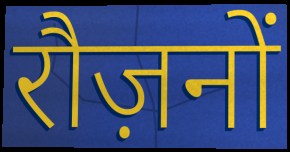
रौज़नों